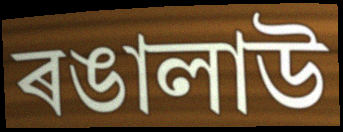
ৰঙালাউ